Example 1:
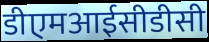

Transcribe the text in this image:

डीएमआईसीडीसी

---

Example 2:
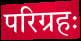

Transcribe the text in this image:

परिग्रहः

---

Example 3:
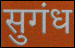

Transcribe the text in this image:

सुगंध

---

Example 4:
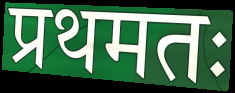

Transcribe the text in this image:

प्रथमतः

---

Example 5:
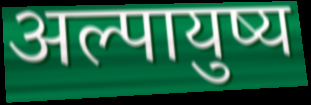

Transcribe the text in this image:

अल्पायुष्य